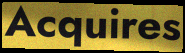
Acquires